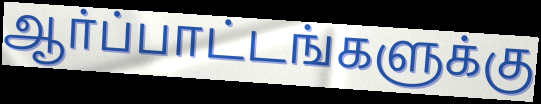
ஆர்ப்பாட்டங்களுக்கு